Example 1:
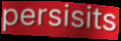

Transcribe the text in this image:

persisits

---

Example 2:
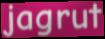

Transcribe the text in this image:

jagrut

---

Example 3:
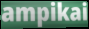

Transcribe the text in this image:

ampikai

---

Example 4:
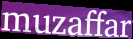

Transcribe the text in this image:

muzaffar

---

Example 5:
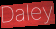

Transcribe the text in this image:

Daley